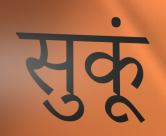
सुकूं